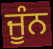
ਜੂੰਨ